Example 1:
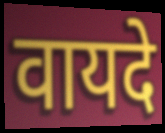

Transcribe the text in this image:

वायदे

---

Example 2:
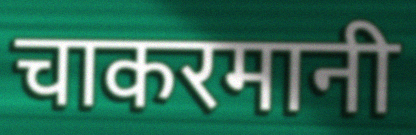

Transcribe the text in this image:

चाकरमानी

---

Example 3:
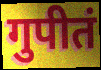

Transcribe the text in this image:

गुपीतं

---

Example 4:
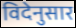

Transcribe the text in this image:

विदेनुसार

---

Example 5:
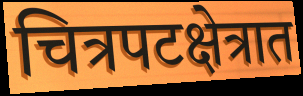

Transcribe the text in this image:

चित्रपटक्षेत्रात